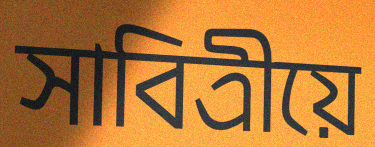
সাবিত্ৰীয়ে